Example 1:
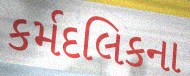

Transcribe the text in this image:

કર્મદલિકના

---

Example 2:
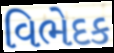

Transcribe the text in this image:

વિભેદક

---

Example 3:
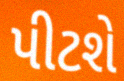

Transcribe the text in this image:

પીટશે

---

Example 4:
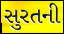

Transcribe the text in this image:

સુરતની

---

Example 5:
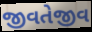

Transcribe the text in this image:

જીવતેજીવ